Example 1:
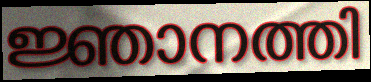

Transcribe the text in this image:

ജ്ഞാനത്തി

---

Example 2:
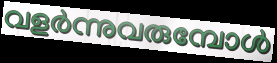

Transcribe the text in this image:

വളർന്നുവരുമ്പോൾ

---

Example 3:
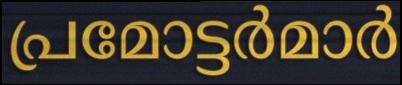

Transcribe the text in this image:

പ്രമോട്ടർമാർ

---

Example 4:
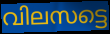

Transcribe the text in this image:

വിലസട്ടെ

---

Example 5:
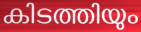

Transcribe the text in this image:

കിടത്തിയും